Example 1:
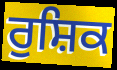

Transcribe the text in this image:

ਰੁਸ਼ਿਕ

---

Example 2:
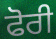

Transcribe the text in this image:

ਫੋਰੀ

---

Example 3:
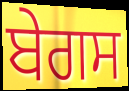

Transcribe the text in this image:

ਬੇਗਸ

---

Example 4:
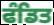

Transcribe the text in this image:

ਫੰਡਿਤ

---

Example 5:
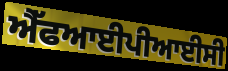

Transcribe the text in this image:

ਐੱਫਆਈਪੀਆਈਸੀ